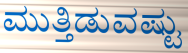
ಮುತ್ತಿಡುವಷ್ಟು